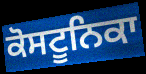
ਕੋਸਟੂਨਿਕਾ